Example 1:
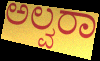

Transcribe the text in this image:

ಅಲ್ವರಾ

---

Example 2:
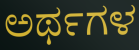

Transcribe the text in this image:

ಅರ್ಥಗಳ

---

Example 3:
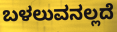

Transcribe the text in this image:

ಬಳಲುವನಲ್ಲದೆ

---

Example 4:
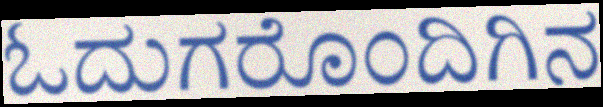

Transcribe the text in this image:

ಓದುಗರೊಂದಿಗಿನ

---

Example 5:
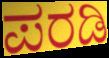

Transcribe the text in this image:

ಪರಡಿ